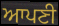
ਆਪਣੀ